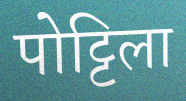
पोट्टिला